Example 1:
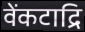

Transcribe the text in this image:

वेंकटाद्रि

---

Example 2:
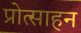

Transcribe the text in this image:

प्रोत्‍साहन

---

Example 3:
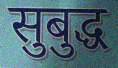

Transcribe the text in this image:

सुबुद्ध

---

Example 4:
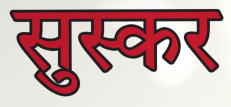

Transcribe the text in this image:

सुस्कर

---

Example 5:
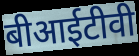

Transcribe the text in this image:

बीआईटीवी